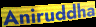
Aniruddha